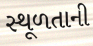
સ્થૂળતાની